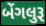
બેંગલુરૂ